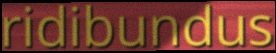
ridibundus